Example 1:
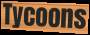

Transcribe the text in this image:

Tycoons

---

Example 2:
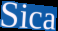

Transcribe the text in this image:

Sica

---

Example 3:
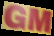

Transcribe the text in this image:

GM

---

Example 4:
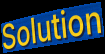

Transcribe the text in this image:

Solution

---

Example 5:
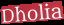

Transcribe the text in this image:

Dholia